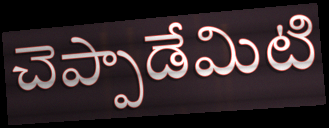
చెప్పాడేమిటి